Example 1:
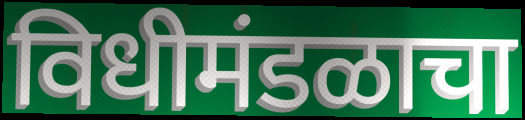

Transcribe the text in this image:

विधीमंडळाचा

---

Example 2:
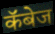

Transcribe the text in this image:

कॅबेज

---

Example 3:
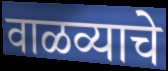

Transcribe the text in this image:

वाळव्याचे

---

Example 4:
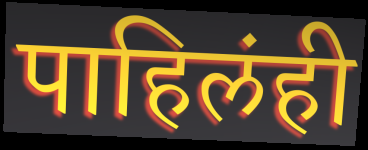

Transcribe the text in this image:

पाहिलंही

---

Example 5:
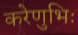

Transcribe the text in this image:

करेणुभिः